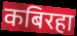
कबिरहा